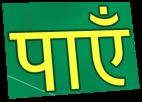
पाएँ